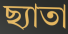
ছ্যাতা